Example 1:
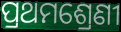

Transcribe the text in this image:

ପ୍ରଥମଶ୍ରେଣୀ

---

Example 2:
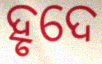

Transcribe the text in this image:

ହୃଦେ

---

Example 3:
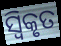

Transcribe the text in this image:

ସ୍ୱିକୃତ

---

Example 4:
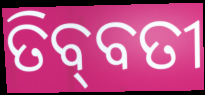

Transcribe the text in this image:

ତିବ୍‌ବତୀ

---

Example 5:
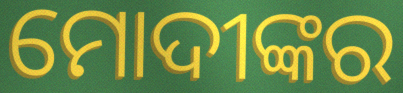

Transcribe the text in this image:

ମୋଦୀଙ୍କର